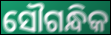
ସୌଗନ୍ଧିକ